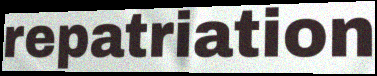
repatriation